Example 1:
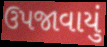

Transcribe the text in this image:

ઉપજાવાયું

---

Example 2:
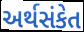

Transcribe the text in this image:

અર્થસંકેત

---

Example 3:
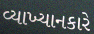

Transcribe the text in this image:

વ્યાખ્યાનકારે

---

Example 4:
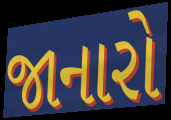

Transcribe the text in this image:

જાનારો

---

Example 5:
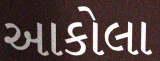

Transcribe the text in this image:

આકોલા